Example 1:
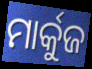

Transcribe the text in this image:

ମାର୍କୁଜ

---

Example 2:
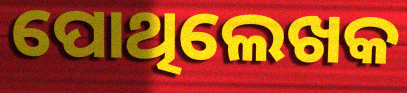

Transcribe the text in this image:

ପୋଥିଲେଖକ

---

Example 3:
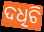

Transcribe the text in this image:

ଦଧିଚି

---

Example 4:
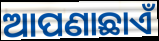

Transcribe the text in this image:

ଆପଣାଛାଏଁ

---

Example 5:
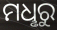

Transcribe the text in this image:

ମଧୢରୁ